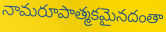
నామరూపాత్మకమైనదంతా